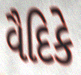
વૈદિકે